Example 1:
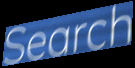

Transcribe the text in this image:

Search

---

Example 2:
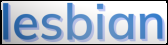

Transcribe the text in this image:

lesbian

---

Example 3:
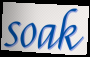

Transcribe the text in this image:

soak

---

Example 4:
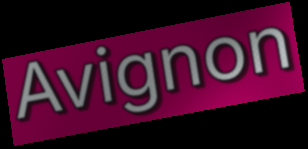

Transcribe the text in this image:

Avignon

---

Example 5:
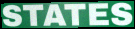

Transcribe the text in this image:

STATES